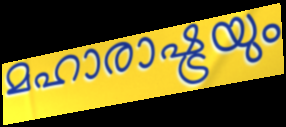
മഹാരാഷ്ട്രയും